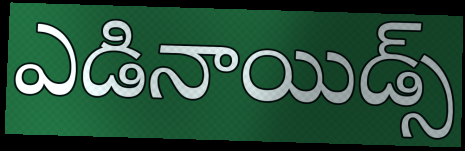
ఎడినాయిడ్స్